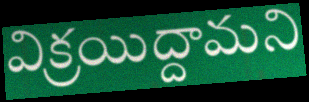
విక్రయిద్దామని